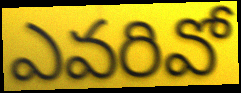
ఎవరివో